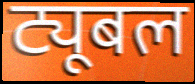
ट्यूबल